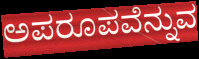
ಅಪರೂಪವೆನ್ನುವ